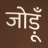
जोड़ूँ